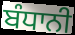
ਬੰਧਾਨੀ